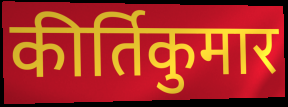
कीर्तिकुमार